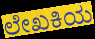
ಲೇಖಕಿಯ